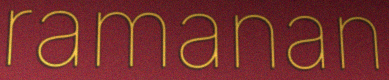
ramanan